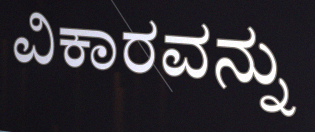
ವಿಕಾರವನ್ನು